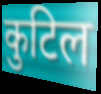
कुटिल